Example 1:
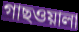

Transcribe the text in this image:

গাছওয়ালা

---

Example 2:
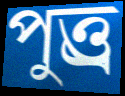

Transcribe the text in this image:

পুত্ত্র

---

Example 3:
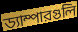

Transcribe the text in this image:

ড্যাম্পারগুলি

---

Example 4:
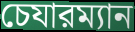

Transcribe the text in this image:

চেযারম্যান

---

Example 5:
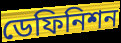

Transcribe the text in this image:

ডেফিনিশন